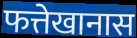
फत्तेखानास